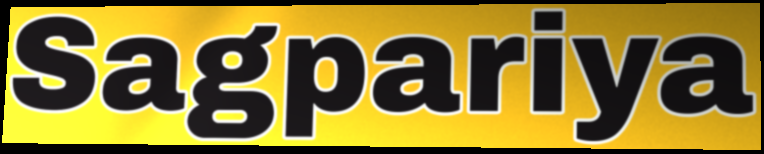
Sagpariya